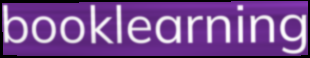
booklearning